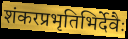
शंकरप्रभृतिभिर्देवैः